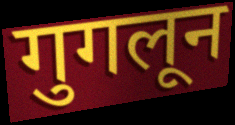
गुगलून